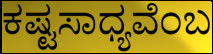
ಕಷ್ಟಸಾಧ್ಯವೆಂಬ